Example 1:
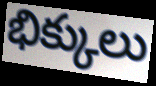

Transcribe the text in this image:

భిక్కులు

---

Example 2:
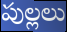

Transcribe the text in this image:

పుల్లలు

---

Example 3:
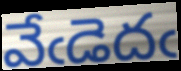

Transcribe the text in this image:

వేఁడెదఁ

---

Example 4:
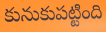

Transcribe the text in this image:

కునుకుపట్టింది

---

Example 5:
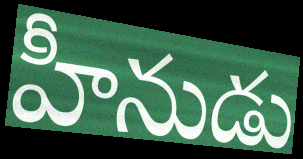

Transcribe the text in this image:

హీనుడు